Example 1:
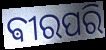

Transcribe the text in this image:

ଵୀରପରି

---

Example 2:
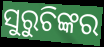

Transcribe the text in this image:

ସୁରୁଚିଙ୍କର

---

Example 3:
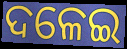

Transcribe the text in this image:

ଦଳେଇ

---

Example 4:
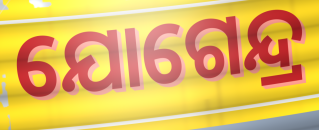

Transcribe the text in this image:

ଯୋଗେନ୍ଦ୍ର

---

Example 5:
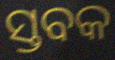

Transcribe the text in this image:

ସ୍ତବକ